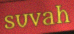
suvah